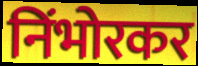
निंभोरकर